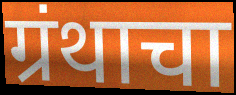
ग्रंथाचा